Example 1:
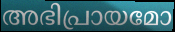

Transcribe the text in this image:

അഭിപ്രായമോ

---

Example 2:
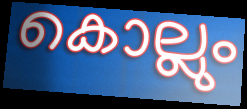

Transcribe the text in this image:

കൊല്ലും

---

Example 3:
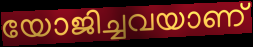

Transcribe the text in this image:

യോജിച്ചവയാണ്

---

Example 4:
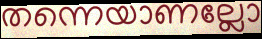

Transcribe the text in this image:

തന്നെയാണല്ലോ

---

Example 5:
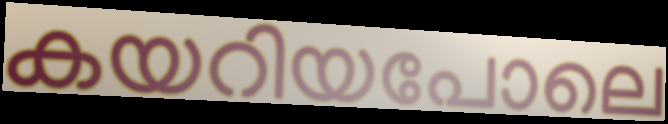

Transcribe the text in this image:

കയറിയപോലെ